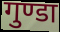
गुण्डा